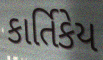
કાર્તિકેય